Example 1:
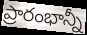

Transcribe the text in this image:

ప్రారంభాన్నీ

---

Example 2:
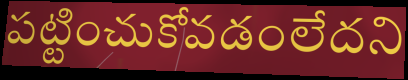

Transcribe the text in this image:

పట్టించుకోవడంలేదని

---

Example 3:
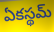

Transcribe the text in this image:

ఏకస్థమ్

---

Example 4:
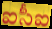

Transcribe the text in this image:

ఐసీఐ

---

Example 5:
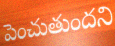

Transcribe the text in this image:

పెంచుతుందని